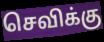
செவிக்கு